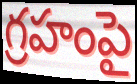
గ్రహంపై